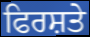
ਫਿਰਸ਼ਤੇ